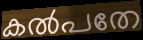
കൽപതേ